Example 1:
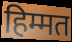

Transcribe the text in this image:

हिम्मत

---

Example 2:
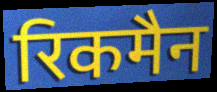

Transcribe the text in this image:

रिकमैन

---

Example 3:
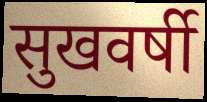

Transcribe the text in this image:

सुखवर्षी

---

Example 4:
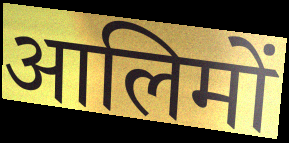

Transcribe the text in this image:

आलिमों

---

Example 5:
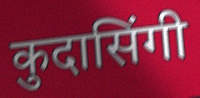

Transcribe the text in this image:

कुदासिंगी